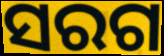
ସରଗ